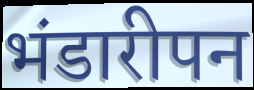
भंडारीपन